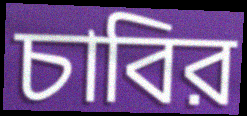
চাবির